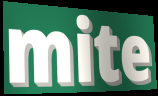
mite